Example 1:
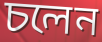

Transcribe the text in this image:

চলেন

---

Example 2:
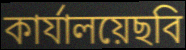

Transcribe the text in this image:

কার্যালয়েছবি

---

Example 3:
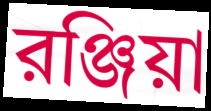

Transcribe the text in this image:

রঞ্জিয়া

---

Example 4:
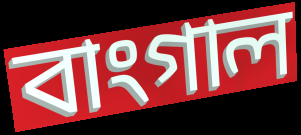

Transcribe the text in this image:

বাংগাল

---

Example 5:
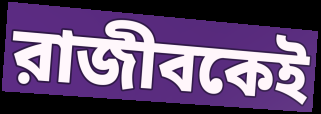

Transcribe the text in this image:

রাজীবকেই